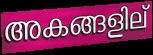
അകങ്ങളില്